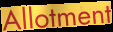
Allotment